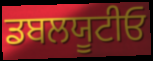
ਡਬਲਯੂਟੀਓ